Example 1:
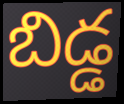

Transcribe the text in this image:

బిడ్డ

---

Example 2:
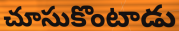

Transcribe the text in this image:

చూసుకొంటాడు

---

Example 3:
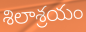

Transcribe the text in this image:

శిలాశ్రయం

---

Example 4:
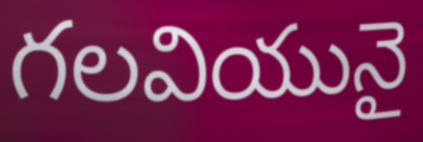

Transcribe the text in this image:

గలవియునై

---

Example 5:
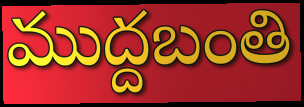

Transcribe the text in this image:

ముద్దబంతి